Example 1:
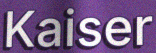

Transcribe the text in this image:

Kaiser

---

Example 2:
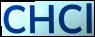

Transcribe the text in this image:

CHCl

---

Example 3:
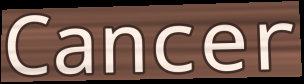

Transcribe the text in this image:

Cancer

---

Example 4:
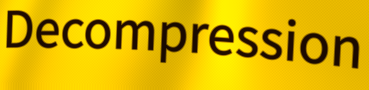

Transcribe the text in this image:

Decompression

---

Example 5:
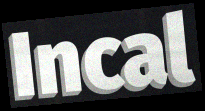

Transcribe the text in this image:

Incal